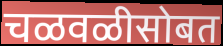
चळवळीसोबत